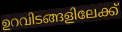
ഉറവിടങ്ങളിലേക്ക്